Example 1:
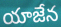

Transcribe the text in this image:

యాజేన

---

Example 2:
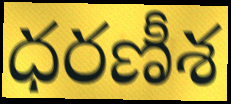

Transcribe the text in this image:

ధరణీశ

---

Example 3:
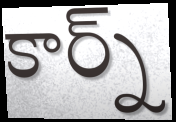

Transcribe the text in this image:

కార్న్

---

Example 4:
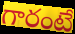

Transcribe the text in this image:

గారంటే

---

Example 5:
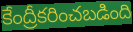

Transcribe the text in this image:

కేంద్రీకరించబడింది